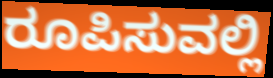
ರೂಪಿಸುವಲ್ಲಿ